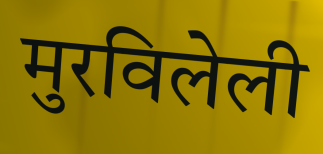
मुरविलेली